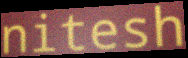
nitesh